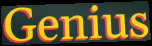
Genius